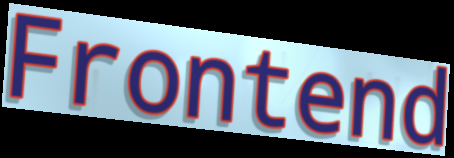
Frontend